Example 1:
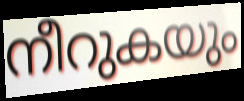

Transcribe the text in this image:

നീറുകയും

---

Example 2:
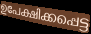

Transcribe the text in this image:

ഉപേക്ഷിക്കപ്പെട്ട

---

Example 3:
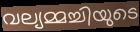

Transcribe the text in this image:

വല്യമ്മച്ചിയുടെ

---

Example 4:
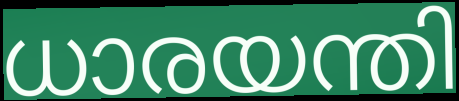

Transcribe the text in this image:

ധാരയന്തി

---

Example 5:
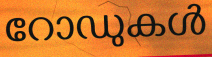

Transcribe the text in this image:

റോഡുകൾ